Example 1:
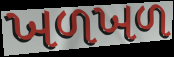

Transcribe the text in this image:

ખળખળ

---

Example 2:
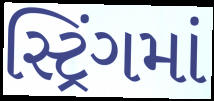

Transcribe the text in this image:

સ્ટ્રિંગમાં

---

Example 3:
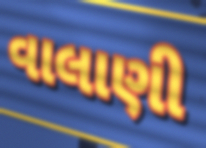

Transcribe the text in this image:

વાલાણી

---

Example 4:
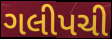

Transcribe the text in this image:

ગલીપચી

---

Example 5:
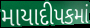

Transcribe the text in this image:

માયાદીપકમાં